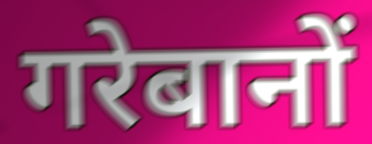
गरेबानों